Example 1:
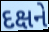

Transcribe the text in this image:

દક્ષને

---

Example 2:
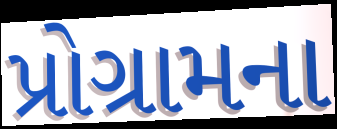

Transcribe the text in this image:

પ્રોગ્રામના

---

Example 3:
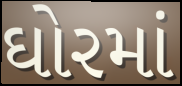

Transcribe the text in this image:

ઘોરમાં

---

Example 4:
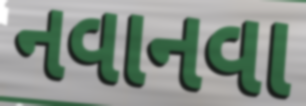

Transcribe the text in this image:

નવાનવા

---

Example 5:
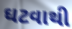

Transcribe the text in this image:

ઘટવાથી